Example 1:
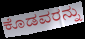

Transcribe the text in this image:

ಕೊಡವರನ್ನು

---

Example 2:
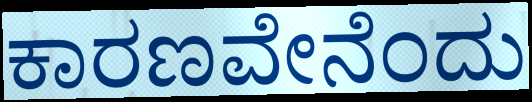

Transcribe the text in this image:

ಕಾರಣವೇನೆಂದು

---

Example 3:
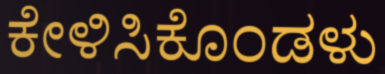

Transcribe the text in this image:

ಕೇಳಿಸಿಕೊಂಡಳು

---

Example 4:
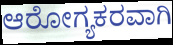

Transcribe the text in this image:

ಆರೋಗ್ಯಕರವಾಗಿ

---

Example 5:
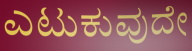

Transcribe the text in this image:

ಎಟುಕುವುದೇ